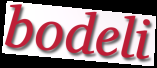
bodeli